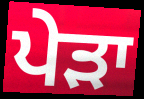
ਪੇੜਾ